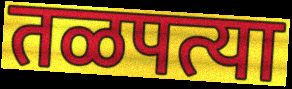
तळपत्या